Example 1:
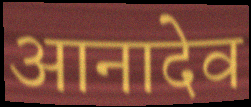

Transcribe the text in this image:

आनादेव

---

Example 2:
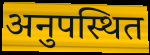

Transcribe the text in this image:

अनुपस्थित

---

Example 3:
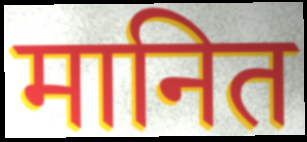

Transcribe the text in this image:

मानित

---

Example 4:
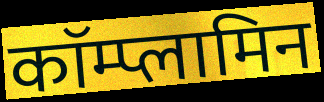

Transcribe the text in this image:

कॉम्प्लामिन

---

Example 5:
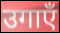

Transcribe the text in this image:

उगाएँ